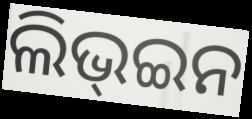
ଲିଭ୍ଇନ